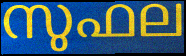
സുഫല